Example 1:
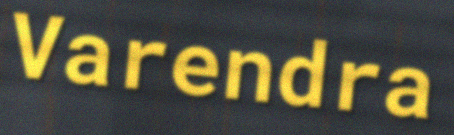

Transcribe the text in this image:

Varendra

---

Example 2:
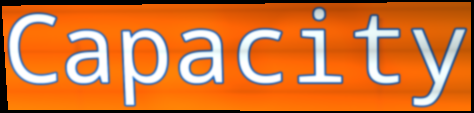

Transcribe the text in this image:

Capacity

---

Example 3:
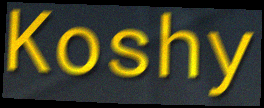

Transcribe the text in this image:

Koshy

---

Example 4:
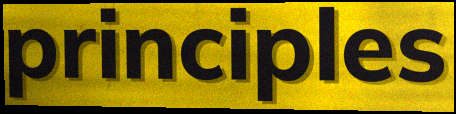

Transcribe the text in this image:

principles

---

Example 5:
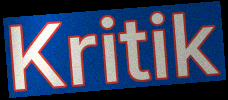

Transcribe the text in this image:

Kritik